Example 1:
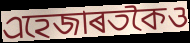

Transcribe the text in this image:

এহেজাৰতকৈও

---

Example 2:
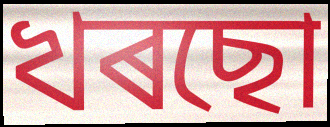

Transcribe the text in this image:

খৰছো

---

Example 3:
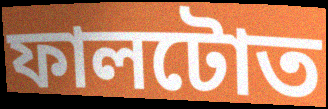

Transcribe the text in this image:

ফালটোত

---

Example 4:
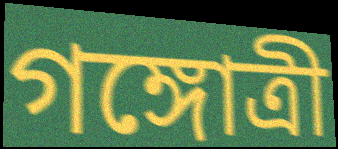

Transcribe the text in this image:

গঙ্গোত্ৰী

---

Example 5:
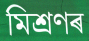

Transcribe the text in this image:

মিশ্ৰণৰ